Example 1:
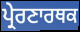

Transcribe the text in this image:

ਪ੍ਰੇਰਣਾਰਥਕ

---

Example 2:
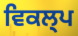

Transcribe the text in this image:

ਵਿਕਲ੍ਪ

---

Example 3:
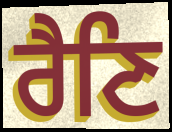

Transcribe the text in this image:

ਰੈਣਿ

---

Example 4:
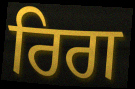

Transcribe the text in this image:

ਰਿਗ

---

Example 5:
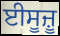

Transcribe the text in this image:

ਈਸੂਜ਼ੂ